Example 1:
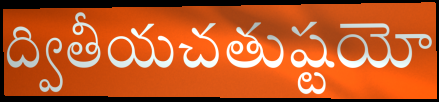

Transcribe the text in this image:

ద్వితీయచతుష్టయో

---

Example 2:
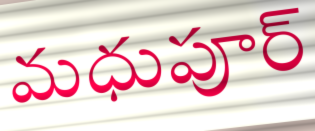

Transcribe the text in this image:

మధుపూర్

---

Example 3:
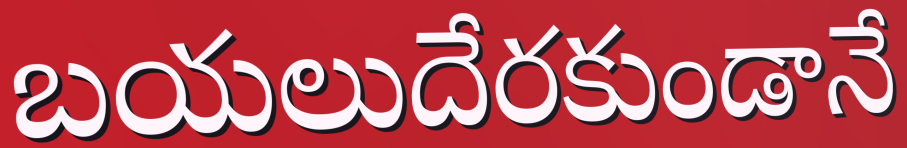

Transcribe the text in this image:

బయలుదేరకుండానే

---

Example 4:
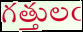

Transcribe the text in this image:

గత్తులఁ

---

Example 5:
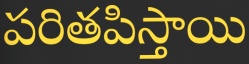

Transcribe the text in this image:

పరితపిస్తాయి